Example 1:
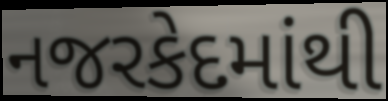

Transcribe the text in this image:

નજરકેદમાંથી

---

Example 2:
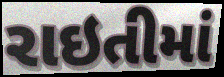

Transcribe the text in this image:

રાઇતીમાં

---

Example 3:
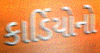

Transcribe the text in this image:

કાર્ડિયોનો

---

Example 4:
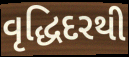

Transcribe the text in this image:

વૃદ્ધિદરથી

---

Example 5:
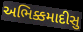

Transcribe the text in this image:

અભિક્કમાદીસુ